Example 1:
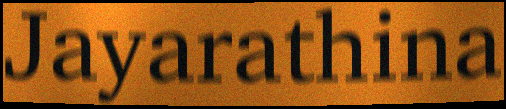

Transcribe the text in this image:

Jayarathina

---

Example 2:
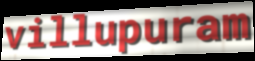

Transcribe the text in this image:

villupuram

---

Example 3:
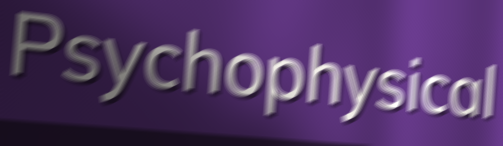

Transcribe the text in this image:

Psychophysical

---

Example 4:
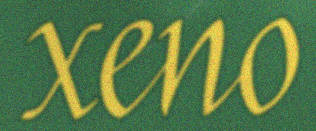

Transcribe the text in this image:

xeno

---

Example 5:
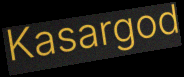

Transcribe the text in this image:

Kasargod